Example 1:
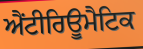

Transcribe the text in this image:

ਐਂਟੀਰਿਊਮੈਟਿਕ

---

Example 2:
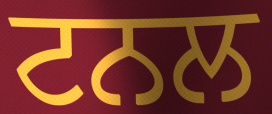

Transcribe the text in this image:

ਟਨਲ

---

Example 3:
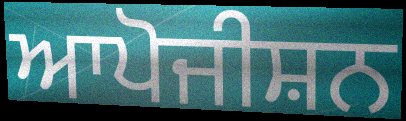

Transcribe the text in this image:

ਆਪੋਜੀਸ਼ਨ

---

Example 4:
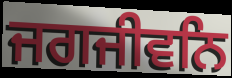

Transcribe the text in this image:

ਜਗਜੀਵਨਿ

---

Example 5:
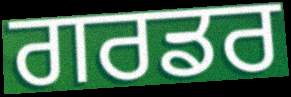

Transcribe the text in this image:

ਗਰਡਰ